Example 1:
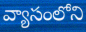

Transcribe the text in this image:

వ్యాసంలోని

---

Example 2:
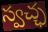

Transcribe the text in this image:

స్వచ్ఛ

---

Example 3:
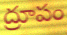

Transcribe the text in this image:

ద్రూపం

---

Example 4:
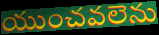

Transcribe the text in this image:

యుంచవలెను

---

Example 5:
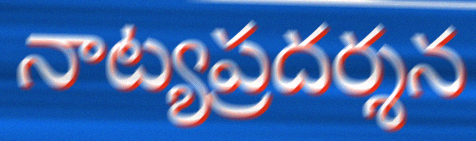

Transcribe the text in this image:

నాట్యప్రదర్శన